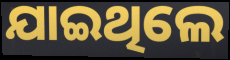
ଯାଇଥିଲେ